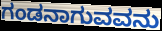
ಗಂಡನಾಗುವವನು